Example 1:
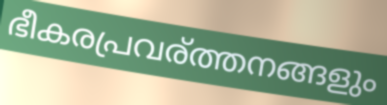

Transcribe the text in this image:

ഭീകരപ്രവര്ത്തനങ്ങളും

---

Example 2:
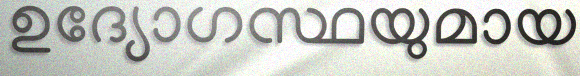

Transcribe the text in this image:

ഉദ്യോഗസ്ഥയുമായ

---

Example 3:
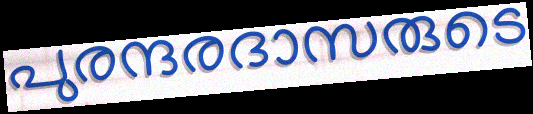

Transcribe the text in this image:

പുരന്ദരദാസരുടെ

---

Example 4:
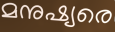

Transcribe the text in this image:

മനുഷ്യരെ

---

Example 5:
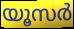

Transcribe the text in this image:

യൂസർ